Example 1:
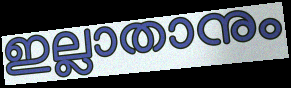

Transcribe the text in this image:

ഇല്ലാതാനും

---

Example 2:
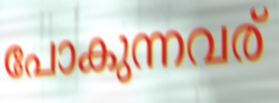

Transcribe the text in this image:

പോകുന്നവര്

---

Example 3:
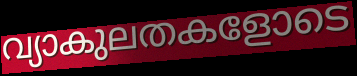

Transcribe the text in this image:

വ്യാകുലതകളോടെ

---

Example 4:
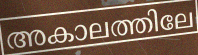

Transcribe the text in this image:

അകാലത്തിലേ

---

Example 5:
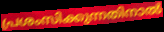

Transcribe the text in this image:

പ്രശംസിക്കുന്നതിനാൽ